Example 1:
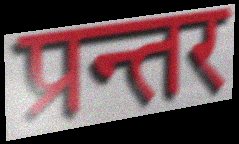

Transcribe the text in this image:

प्रन्तर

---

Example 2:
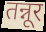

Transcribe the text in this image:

तन्नूर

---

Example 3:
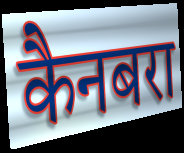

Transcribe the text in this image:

कैनबरा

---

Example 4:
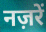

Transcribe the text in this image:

नज़रें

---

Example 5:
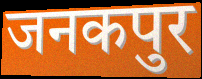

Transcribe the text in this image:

जनकपुर